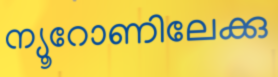
ന്യൂറോണിലേക്കു